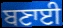
ਬਣਾਈ